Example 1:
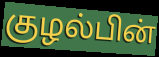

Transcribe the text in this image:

குழல்பின்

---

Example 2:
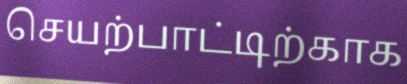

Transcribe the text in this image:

செயற்பாட்டிற்காக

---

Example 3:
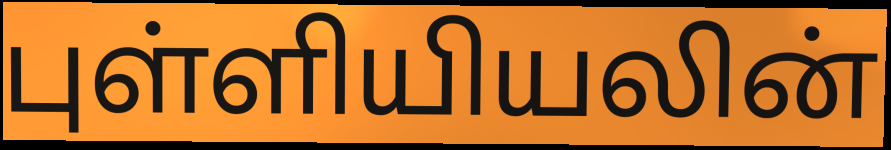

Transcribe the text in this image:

புள்ளியியலின்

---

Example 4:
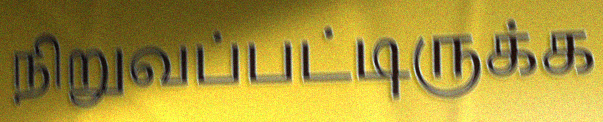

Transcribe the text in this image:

நிறுவப்பட்டிருக்க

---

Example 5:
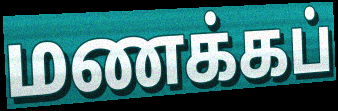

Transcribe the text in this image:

மணக்கப்